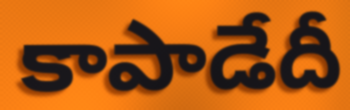
కాపాడేదీ